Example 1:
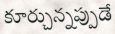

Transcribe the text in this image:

కూర్చున్నప్పుడే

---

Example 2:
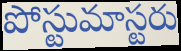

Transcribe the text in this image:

పోస్టుమాస్టరు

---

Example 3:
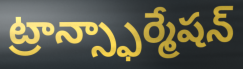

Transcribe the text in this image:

ట్రాన్స్ఫార్మేషన్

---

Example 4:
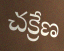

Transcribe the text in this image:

చక్రేణ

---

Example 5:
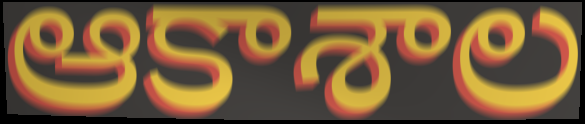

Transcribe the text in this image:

ఆకాశాల